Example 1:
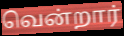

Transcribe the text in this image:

வென்றார்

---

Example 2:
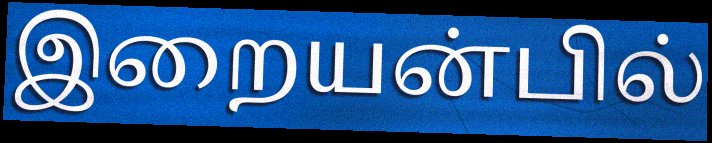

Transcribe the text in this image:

இறையன்பில்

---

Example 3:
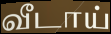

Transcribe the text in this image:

வீடாய்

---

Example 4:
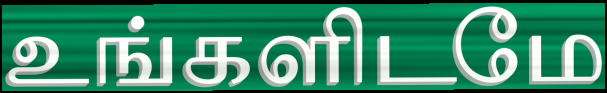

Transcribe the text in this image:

உங்களிடமே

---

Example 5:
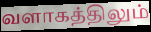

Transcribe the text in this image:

வளாகத்திலும்